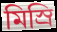
মিস্রি